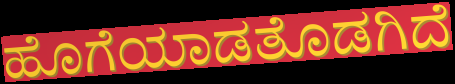
ಹೊಗೆಯಾಡತೊಡಗಿದೆ